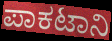
ಪಾಕಟಾನಿ